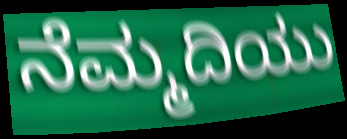
ನೆಮ್ಮದಿಯು